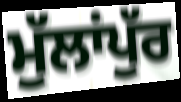
ਮੁੱਲਾਂਪੁੱਰ